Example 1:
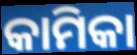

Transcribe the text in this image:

କାମିକା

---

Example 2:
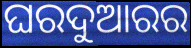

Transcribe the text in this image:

ଘରଦୁଆରର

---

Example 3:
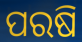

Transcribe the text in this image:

ପରଷି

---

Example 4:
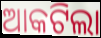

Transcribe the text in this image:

ଆକଟିଲା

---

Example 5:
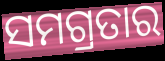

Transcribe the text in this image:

ସମଗ୍ରତାର